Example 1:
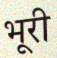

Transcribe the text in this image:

भूरी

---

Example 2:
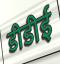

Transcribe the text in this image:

डीडीई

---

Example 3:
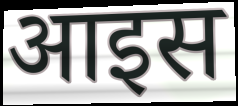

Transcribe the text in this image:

आइस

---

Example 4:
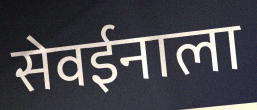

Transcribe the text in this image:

सेवईनाला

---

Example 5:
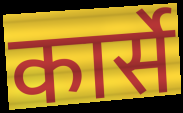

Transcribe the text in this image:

कार्से